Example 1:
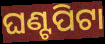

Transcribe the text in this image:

ଘଣ୍ଟପିଟା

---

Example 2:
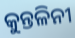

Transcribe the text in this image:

କୁନ୍ତଳିନୀ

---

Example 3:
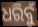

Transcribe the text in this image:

ଧରିବୁଁ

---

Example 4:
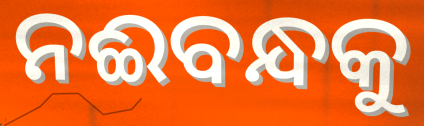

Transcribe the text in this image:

ନଈବନ୍ଧକୁ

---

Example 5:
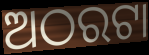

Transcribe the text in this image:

ଅଠରଟା